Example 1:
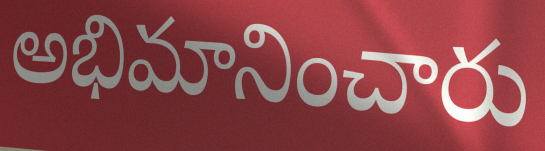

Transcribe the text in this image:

అభిమానించారు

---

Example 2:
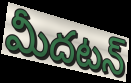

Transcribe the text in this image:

మీదటన్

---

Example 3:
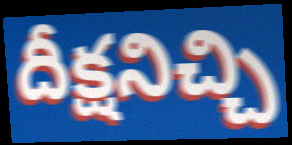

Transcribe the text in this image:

దీక్షనిచ్చి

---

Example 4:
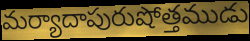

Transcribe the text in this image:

మర్యాదాపురుషోత్తముడు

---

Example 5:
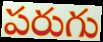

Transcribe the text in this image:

పరుగు